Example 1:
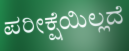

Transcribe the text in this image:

ಪರೀಕ್ಷೆಯಿಲ್ಲದೆ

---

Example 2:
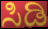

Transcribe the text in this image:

ಸಿಡಿ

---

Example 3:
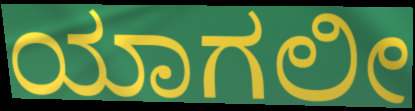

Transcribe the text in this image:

ಯಾಗಲೀ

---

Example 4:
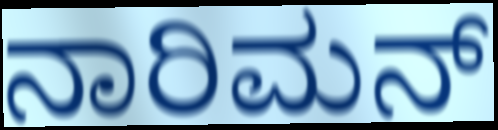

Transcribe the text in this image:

ನಾರಿಮನ್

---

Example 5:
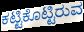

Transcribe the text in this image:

ಕಟ್ಟಿಕೊಟ್ಟಿರುವ